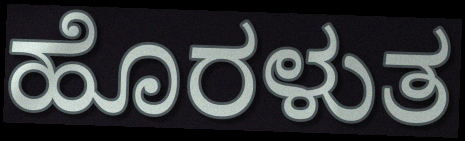
ಹೊರಳುತ